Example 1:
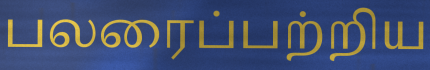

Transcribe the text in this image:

பலரைப்பற்றிய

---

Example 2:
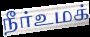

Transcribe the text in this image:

நீர்உமக்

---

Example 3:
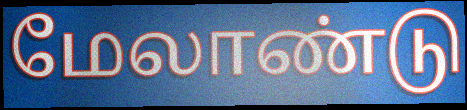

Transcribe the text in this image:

மேலாண்டு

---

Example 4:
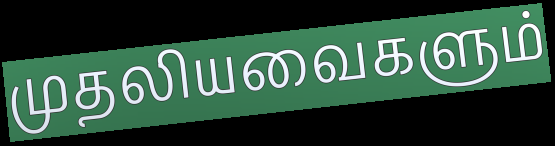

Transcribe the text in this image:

முதலியவைகளும்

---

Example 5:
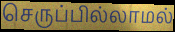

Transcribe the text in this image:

செருப்பில்லாமல்